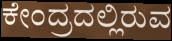
ಕೇಂದ್ರದಲ್ಲಿರುವ